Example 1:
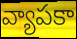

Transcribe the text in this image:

వ్యాపకా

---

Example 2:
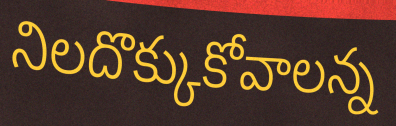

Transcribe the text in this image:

నిలదొక్కుకోవాలన్న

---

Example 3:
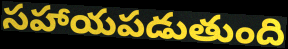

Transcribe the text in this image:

సహాయపడుతుంది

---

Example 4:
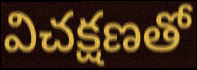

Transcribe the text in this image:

విచక్షణతో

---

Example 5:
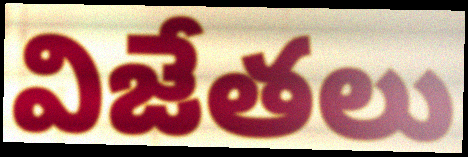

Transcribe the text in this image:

విజేతలు